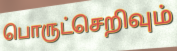
பொருட்செறிவும்